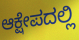
ಆಕ್ಷೇಪದಲ್ಲಿ